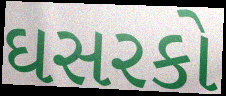
ઘસરકો